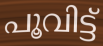
പൂവിട്ട്